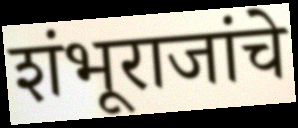
शंभूराजांचे